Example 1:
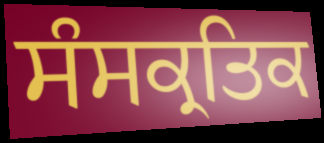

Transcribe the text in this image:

ਸੰਸਕ੍ਰਤਿਕ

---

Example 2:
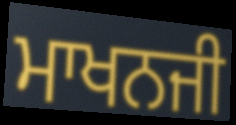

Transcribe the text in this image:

ਮਾਖਨਜੀ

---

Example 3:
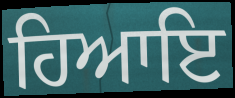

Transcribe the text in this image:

ਹਿਆਇ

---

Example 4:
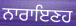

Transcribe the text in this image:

ਨਾਰਾਇਣਹ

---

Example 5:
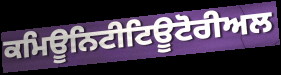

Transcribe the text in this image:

ਕਮਿਊਨਿਟੀਟਿਊਟੋਰੀਅਲ